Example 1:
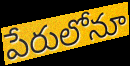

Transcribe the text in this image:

పేరులోనూ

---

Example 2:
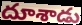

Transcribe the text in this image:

దూశాడు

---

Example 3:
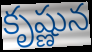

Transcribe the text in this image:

కృష్ణున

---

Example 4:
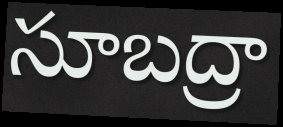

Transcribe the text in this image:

సూబద్రా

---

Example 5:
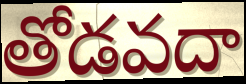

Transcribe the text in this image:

తోడవదా